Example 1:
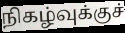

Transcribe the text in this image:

நிகழ்வுக்குச்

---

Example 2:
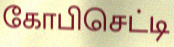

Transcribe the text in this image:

கோபிசெட்டி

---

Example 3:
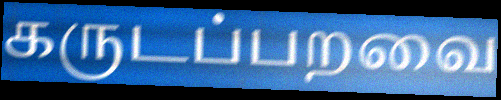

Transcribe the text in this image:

கருடப்பறவை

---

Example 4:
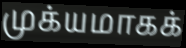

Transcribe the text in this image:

முக்யமாகக்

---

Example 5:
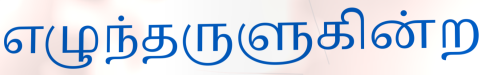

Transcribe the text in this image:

எழுந்தருளுகின்ற